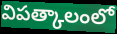
విపత్కాలంలో